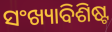
ସଂଖ୍ୟାବିଶିଷ୍ଟ